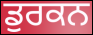
ਡੁਰਕਨ